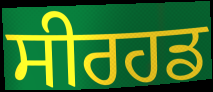
ਸੀਰਹਡ